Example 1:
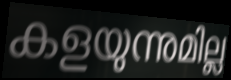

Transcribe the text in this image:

കളയുന്നുമില്ല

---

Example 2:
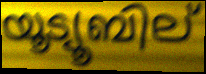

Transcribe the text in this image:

യൂട്യൂബില്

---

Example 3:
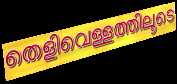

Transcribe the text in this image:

തെളിവെള്ളത്തിലൂടെ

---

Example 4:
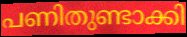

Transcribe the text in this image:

പണിതുണ്ടാക്കി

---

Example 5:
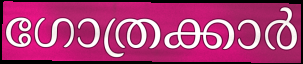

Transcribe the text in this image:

ഗോത്രക്കാർ